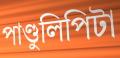
পাণ্ডুলিপিটা